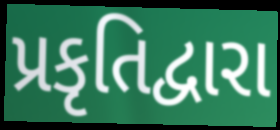
પ્રકૃતિદ્વારા